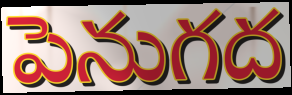
పెనుగద